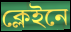
ক্লেইনে